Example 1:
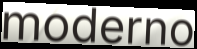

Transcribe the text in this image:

moderno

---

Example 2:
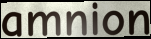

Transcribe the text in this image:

amnion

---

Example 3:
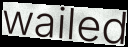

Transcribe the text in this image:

wailed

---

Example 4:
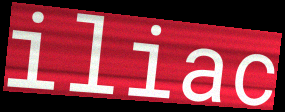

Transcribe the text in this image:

iliac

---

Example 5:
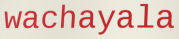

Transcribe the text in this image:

wachayala